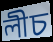
লীচ